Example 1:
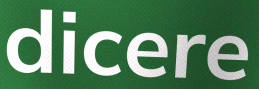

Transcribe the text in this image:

dicere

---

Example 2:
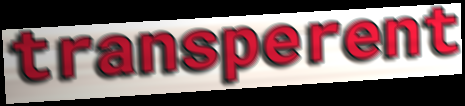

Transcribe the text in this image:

transperent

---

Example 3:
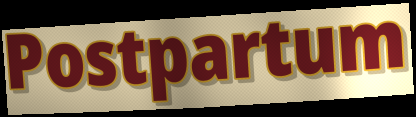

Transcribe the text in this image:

Postpartum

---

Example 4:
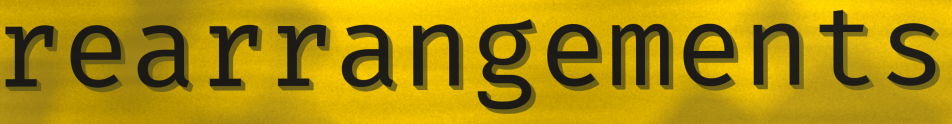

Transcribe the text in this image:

rearrangements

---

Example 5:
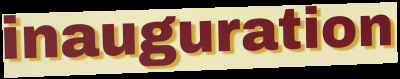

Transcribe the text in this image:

inauguration